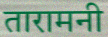
तारामनी